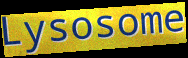
Lysosome